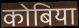
कोबिया